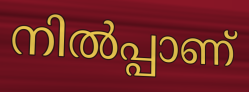
നിൽപ്പാണ്